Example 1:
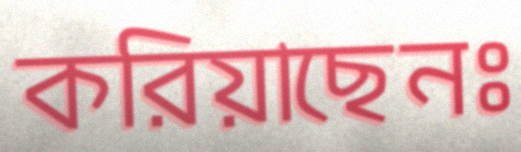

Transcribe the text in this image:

করিয়াছেনঃ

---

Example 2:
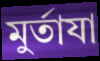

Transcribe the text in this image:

মুর্তাযা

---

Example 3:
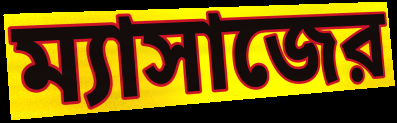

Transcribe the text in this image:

ম্যাসাজের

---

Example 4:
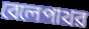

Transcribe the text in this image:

বেলেপাথর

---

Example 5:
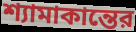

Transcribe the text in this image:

শ্যামাকান্তের